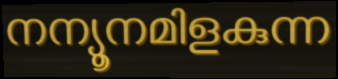
നന്യൂനമിളകുന്ന